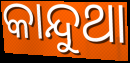
କାନ୍ଦୁଥା